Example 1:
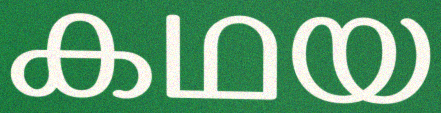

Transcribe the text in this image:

കഥയ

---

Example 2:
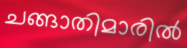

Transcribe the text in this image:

ചങ്ങാതിമാരിൽ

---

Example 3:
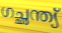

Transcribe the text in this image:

ഗച്ഛന്ത്യ്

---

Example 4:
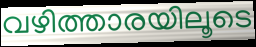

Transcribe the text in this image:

വഴിത്താരയിലൂടെ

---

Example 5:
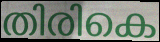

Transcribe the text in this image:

തിരികെ